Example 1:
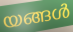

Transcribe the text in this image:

യങ്ങൾ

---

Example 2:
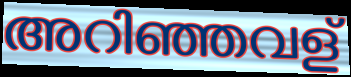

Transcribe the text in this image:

അറിഞ്ഞവള്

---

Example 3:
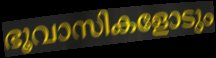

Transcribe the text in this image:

ഭൂവാസികളോടും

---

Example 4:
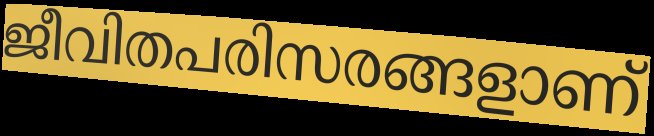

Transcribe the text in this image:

ജീവിതപരിസരങ്ങളാണ്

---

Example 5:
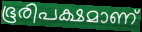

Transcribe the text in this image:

ഭൂരിപക്ഷമാണ്